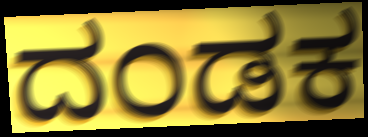
ದಂಡಕ